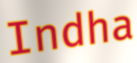
Indha